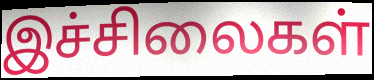
இச்சிலைகள்